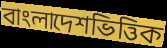
বাংলাদেশভিত্তিক